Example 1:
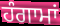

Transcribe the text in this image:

ਹੰਗਾਮਾਂ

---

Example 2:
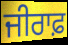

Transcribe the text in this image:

ਜੀਰਾਫ਼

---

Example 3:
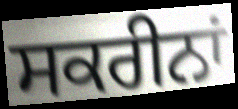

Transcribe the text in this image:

ਸਕਰੀਨਾਂ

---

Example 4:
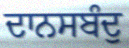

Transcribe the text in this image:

ਦਾਨਸਬੰਦੁ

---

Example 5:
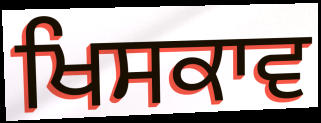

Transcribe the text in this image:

ਖਿਸਕਾਵ